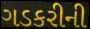
ગડકરીની